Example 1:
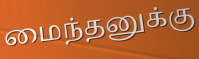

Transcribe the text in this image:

மைந்தனுக்கு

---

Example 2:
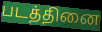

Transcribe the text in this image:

படத்தினை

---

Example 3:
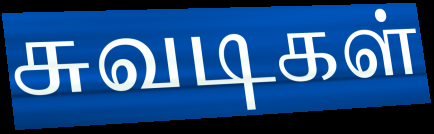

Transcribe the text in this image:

சுவடிகள்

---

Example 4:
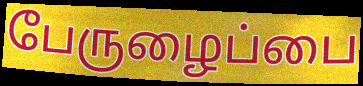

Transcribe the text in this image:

பேருழைப்பை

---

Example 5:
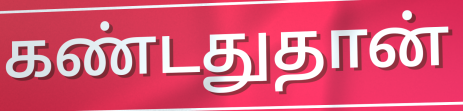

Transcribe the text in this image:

கண்டதுதான்